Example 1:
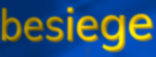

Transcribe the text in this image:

besiege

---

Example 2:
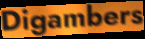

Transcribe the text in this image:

Digambers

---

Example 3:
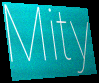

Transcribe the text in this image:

Mity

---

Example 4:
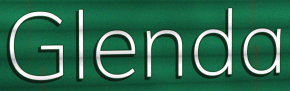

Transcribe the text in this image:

Glenda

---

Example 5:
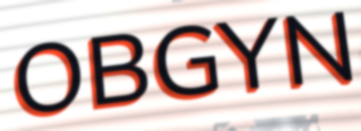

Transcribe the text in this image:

OBGYN